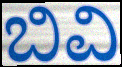
ಬಿವಿ